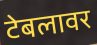
टेबलावर